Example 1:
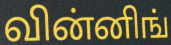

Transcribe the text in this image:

வின்னிங்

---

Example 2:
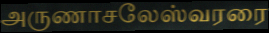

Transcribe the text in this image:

அருணாசலேஸ்வரரை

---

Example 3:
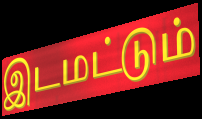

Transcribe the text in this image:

இடமட்டும்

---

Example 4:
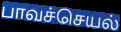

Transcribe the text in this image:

பாவச்செயல்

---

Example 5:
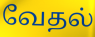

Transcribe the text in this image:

வேதல்